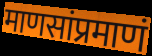
माणसांप्रमाणं